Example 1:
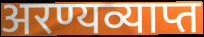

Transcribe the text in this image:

अरण्यव्याप्त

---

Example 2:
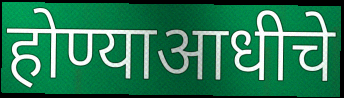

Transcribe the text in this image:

होण्याआधीचे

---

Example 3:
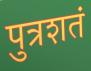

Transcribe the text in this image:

पुत्रशतं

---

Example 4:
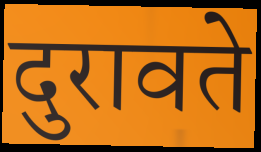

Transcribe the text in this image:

दुरावते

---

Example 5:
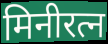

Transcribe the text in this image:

मिनीरत्न